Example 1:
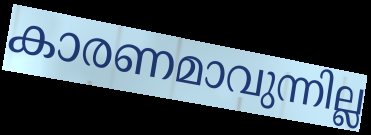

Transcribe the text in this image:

കാരണമാവുന്നില്ല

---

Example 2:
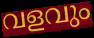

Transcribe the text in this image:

വളവും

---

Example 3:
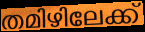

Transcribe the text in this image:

തമിഴിലേക്ക്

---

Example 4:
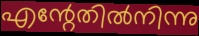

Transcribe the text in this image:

എന്റേതിൽനിന്നു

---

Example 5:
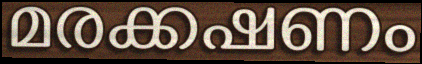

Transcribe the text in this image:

മരക്കഷണം